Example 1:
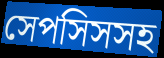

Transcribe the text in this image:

সেপসিসসহ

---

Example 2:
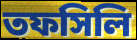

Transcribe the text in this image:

তফসিলি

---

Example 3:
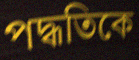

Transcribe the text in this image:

পদ্ধতিকে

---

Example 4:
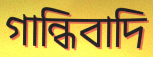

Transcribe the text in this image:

গান্ধিবাদি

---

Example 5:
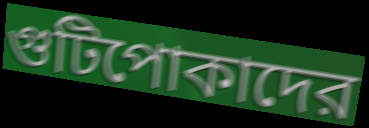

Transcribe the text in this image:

গুটিপোকাদের